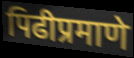
पिढीप्रमाणे